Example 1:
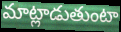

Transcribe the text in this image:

మాట్లాడుతుంటా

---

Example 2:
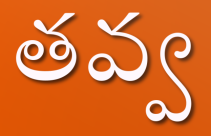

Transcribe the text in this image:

తవ్వ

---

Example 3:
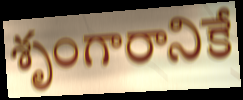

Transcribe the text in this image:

శృంగారానికే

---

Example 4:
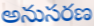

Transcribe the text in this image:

అనుసరణ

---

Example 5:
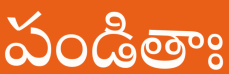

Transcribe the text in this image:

పండితాః